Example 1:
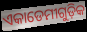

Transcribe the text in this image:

ଏକାଡେମୀଗୁଡ଼ିକ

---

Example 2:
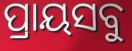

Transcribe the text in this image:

ପ୍ରାୟସବୁ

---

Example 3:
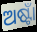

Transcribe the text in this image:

ଅଷ୍ଟାଁ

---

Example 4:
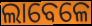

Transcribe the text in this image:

ଲାବେଳେ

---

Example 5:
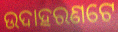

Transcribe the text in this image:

ଉଦାହରଣଟେ